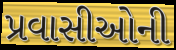
પ્રવાસીઓની